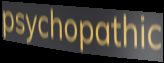
psychopathic